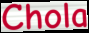
Chola